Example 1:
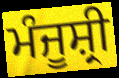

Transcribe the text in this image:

ਮੰਜੂਸ਼੍ਰੀ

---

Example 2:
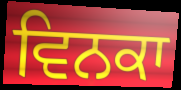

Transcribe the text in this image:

ਵਿਨਕਾ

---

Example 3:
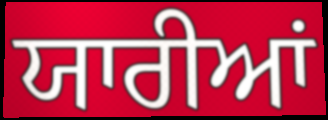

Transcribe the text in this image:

ਯਾਰੀਆਂ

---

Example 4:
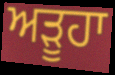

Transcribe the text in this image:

ਅੜੂਹਾ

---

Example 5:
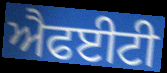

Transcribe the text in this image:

ਐਫਈਟੀ